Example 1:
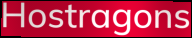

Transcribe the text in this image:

Hostragons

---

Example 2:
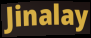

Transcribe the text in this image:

Jinalay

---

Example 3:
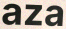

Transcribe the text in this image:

aza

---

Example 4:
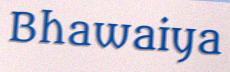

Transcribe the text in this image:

Bhawaiya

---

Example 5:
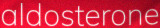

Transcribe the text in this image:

aldosterone